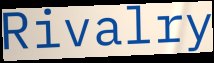
Rivalry